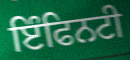
ਇੰਫਿਨਟੀ